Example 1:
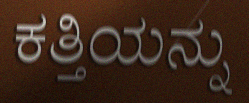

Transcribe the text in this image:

ಕತ್ತಿಯನ್ನು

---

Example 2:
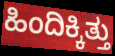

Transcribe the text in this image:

ಹಿಂದಿಕ್ಕಿತ್ತು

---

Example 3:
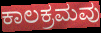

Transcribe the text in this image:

ಕಾಲಕ್ರಮವು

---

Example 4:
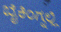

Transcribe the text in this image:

ಬೈಕಿಂಗ್ನಲ್ಲಿ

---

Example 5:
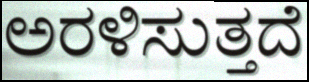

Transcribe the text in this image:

ಅರಳಿಸುತ್ತದೆ